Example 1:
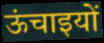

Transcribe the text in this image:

ऊंचाइयों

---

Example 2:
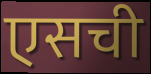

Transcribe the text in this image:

एसची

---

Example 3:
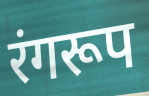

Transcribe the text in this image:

रंगरूप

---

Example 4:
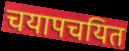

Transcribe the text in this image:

चयापचयित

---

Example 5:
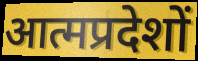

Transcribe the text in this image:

आत्मप्रदेशों